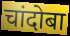
चांदोबा